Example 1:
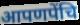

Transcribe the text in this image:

आपणपेंचि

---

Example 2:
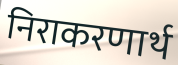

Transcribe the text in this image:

निराकरणार्थ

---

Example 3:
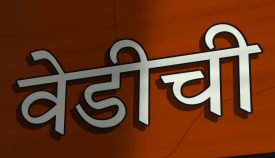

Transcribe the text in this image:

वेडीची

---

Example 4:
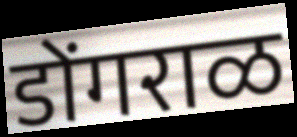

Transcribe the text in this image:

डोंगराळ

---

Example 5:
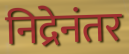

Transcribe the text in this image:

निद्रेनंतर